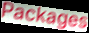
Packages